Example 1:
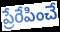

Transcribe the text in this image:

ప్రేరేపించే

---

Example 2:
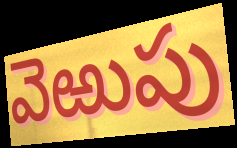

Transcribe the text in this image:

వెఱుపు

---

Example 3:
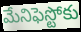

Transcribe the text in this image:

మేనిఫెస్టోకు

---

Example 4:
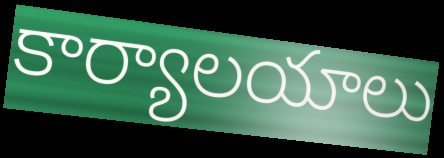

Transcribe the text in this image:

కార్యాలయాలు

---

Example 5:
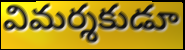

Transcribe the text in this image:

విమర్శకుడూ